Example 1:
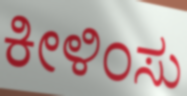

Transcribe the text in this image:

ಕೀಳಿಂಸು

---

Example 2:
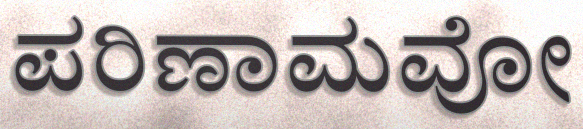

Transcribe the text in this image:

ಪರಿಣಾಮವೋ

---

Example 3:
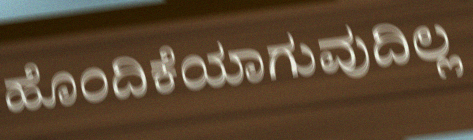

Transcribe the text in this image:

ಹೊಂದಿಕೆಯಾಗುವುದಿಲ್ಲ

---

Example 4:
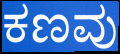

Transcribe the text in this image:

ಕಣವು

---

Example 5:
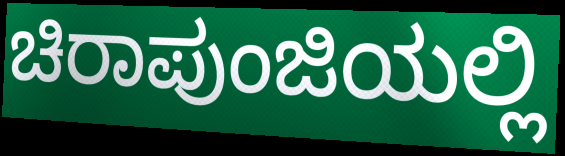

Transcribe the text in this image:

ಚಿರಾಪುಂಜಿಯಲ್ಲಿ